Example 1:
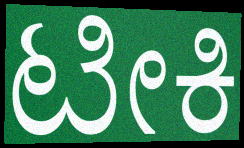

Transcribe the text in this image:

ಟೀಕಿ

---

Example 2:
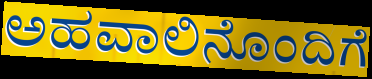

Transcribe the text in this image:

ಅಹವಾಲಿನೊಂದಿಗೆ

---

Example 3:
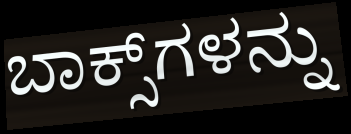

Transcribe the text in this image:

ಬಾಕ್ಸ್‌ಗಳನ್ನು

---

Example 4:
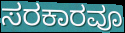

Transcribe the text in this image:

ಸರಕಾರವೂ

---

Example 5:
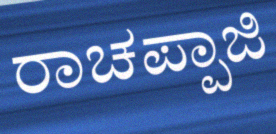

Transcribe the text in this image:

ರಾಚಪ್ಪಾಜಿ